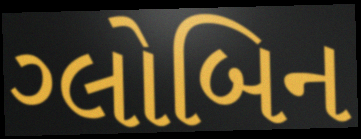
ગ્લોબિન